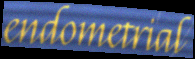
endometrial